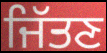
ਜਿੱਤਣ